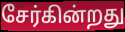
சேர்கின்றது